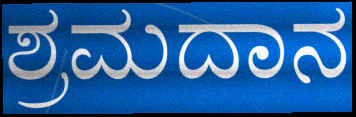
ಶ್ರಮದಾನ